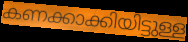
കണക്കാക്കിയിട്ടുള്ള